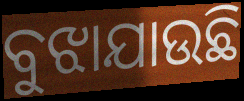
ବୁଝାଯାଉଛି